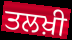
ਤਲਖ਼ੀ